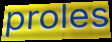
proles